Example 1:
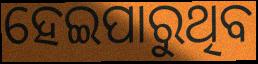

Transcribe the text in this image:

ହେଇପାରୁଥିବ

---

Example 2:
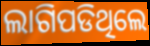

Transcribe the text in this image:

ଲାଗିପଡିଥିଲେ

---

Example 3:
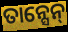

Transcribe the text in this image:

ତାନ୍ସେନ୍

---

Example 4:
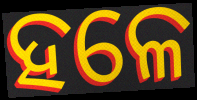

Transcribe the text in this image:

ହଳେ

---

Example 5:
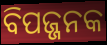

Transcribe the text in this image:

ବିପଜ୍ଜନକ